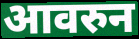
आवरुन